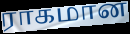
ராகமான